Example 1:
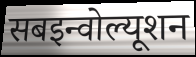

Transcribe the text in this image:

सबइन्वोल्यूशन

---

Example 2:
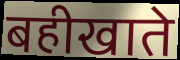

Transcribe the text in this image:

बहीखाते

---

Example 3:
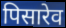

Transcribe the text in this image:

पिसारेव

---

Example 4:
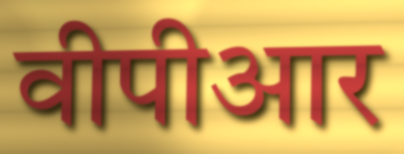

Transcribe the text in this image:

वीपीआर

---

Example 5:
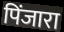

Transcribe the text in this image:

पिंजारा